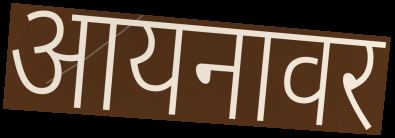
आयनावर